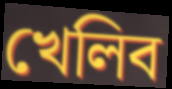
খেলিব